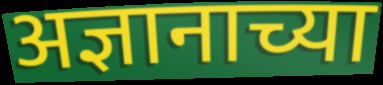
अज्ञानाच्या